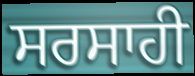
ਸਰਸਾਹੀ